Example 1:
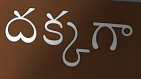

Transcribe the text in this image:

దక్కగా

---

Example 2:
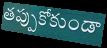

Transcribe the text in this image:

తప్పుకోకుండా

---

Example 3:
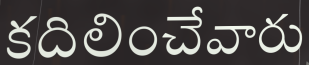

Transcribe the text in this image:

కదిలించేవారు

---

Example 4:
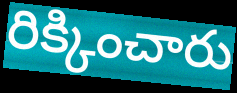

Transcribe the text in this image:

రిక్కించారు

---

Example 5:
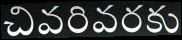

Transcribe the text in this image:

చివరివరకు